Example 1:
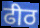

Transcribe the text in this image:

ढीठ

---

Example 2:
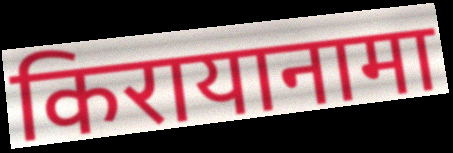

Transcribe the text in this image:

किरायानामा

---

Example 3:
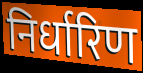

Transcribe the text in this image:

निर्धारिण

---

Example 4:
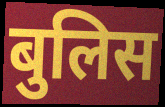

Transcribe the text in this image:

बुलिस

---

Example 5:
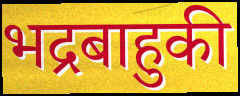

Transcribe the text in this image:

भद्रबाहुकी